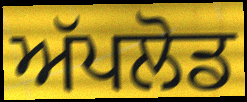
ਅੱਪਲੋਡ